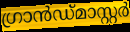
ഗ്രാൻഡ്മാസ്റ്റർ